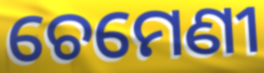
ଚେମେଣୀ